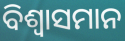
ବିଶ୍ଵାସମାନ